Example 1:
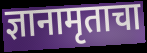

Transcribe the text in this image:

ज्ञानामृताचा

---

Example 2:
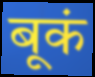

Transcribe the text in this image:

बूकं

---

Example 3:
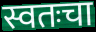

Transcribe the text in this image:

स्वतःचा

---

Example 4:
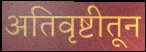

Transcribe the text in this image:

अतिवृष्टीतून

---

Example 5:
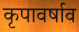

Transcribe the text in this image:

कृपावर्षाव